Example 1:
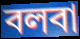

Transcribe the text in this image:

বলবা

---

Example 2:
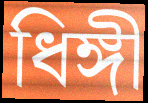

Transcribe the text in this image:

ধিঙ্গী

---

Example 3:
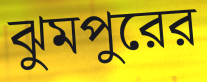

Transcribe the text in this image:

ঝুমপুরের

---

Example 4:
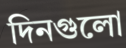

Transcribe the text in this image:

দিনগুলো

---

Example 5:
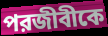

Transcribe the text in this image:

পরজীবীকে